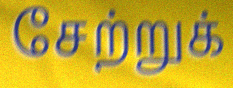
சேற்றுக்